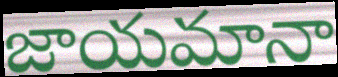
జాయమానా